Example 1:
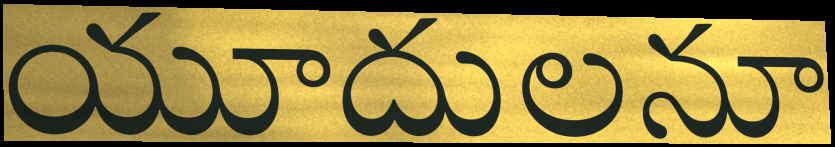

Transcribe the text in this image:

యూదులనూ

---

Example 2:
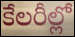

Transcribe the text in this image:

కేలరీల్లో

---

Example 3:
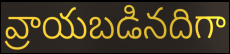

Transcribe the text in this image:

వ్రాయబడినదిగా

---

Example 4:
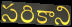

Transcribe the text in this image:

సరికాని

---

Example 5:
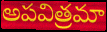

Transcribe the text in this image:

అపవిత్రమా